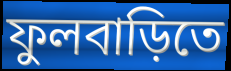
ফুলবাড়িতে